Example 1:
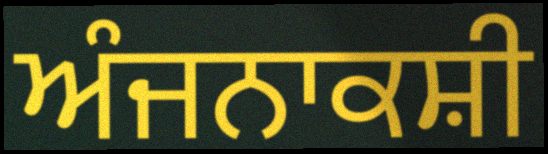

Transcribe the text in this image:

ਅੰਜਨਾਕਸ਼ੀ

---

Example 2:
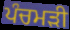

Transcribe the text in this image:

ਪੰਚਮੜੀ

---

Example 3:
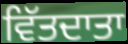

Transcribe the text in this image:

ਵਿੱਤਦਾਤਾ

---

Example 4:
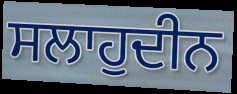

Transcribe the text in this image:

ਸਲਾਹੁਦੀਨ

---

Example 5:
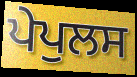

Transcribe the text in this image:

ਪੇਪੁਲਸ